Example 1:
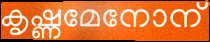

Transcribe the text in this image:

കൃഷ്ണമേനോന്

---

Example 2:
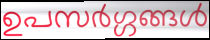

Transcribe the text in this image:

ഉപസർഗ്ഗങ്ങൾ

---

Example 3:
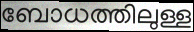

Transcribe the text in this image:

ബോധത്തിലുള്ള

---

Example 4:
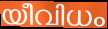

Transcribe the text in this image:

യീവിധം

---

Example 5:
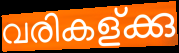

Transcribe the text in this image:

വരികള്ക്കു